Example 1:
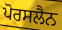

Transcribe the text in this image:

ਪੋਰਸਲੈਨ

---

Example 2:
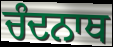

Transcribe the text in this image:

ਚੰਦਨਾਥ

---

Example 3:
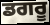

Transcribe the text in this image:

ਡਗਰੂ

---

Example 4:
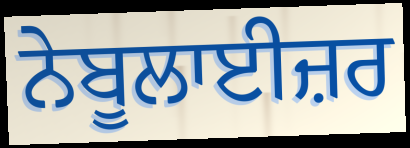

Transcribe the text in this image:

ਨੇਬੂਲਾਈਜ਼ਰ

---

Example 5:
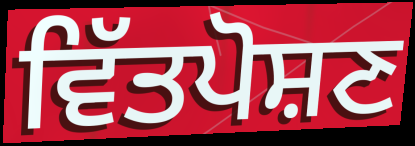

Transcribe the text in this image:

ਵਿੱਤਪੋਸ਼ਣ